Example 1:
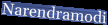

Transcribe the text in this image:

Narendramodi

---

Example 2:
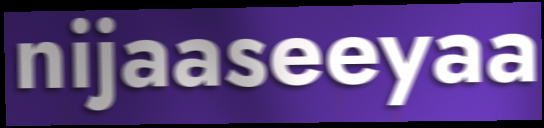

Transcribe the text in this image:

nijaaseeyaa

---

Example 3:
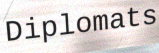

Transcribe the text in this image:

Diplomats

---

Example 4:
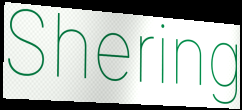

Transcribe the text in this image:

Shering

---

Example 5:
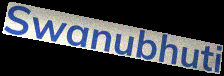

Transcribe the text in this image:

Swanubhuti